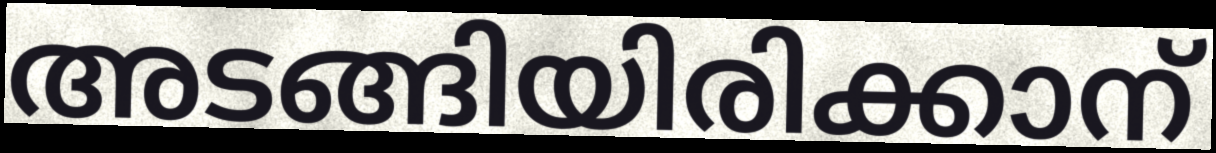
അടങ്ങിയിരിക്കാന്